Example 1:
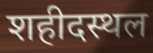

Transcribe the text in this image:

शहीदस्थल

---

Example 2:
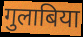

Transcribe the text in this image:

गुलाबिया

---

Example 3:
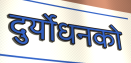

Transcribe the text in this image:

दुर्योधनको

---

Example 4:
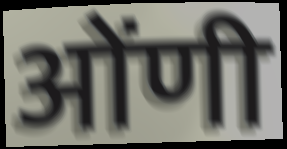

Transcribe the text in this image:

ओंणी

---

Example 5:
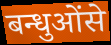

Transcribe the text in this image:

बन्धुओंसे